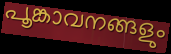
പൂങ്കാവനങ്ങളും